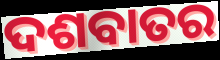
ଦଶବାତର